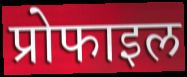
प्रोफाइल